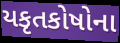
યકૃતકોષોના